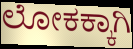
ಲೋಕಕ್ಕಾಗಿ